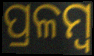
ପ୍ରଳମ୍ବ